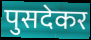
पुसदेकर